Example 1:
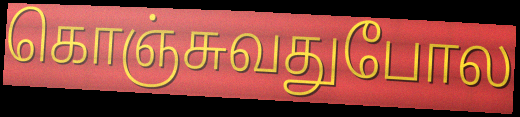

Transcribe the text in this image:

கொஞ்சுவதுபோல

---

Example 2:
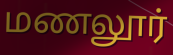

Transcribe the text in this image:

மணலூர்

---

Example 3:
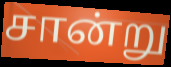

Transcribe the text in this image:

சான்று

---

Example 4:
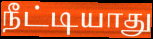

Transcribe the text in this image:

நீட்டியாது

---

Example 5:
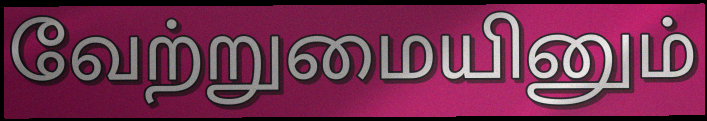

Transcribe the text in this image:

வேற்றுமையினும்